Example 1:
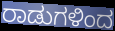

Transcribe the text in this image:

ರಾಡುಗಳಿಂದ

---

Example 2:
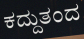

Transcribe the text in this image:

ಕದ್ದುತಂದ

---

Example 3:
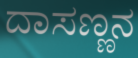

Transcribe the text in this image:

ದಾಸಣ್ಣನ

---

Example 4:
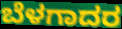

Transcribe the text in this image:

ಬೆಳಗಾದರ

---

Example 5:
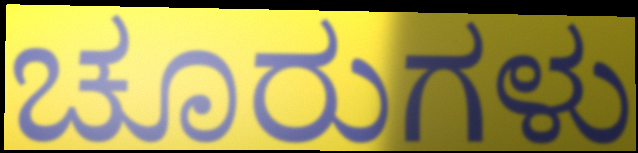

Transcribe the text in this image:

ಚೂರುಗಳು